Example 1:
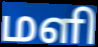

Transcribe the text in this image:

மளி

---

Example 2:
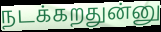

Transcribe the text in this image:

நடக்கறதுன்னு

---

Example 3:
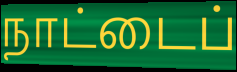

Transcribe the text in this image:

நாட்டைப்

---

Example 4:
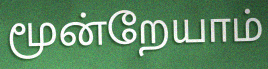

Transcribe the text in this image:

மூன்றேயாம்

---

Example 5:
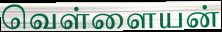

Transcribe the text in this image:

வெள்ளையன்